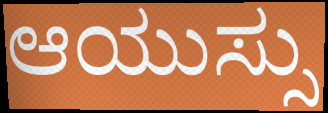
ಆಯುಸ್ಸು